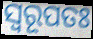
ସ୍ଵରୂପତଃ